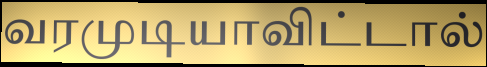
வரமுடியாவிட்டால்